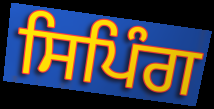
ਸਿਪਿੰਗ